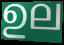
ഉല